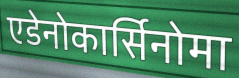
एडेनोकार्सिनोमा